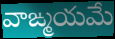
వాఙ్మయమే